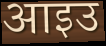
आइउ